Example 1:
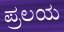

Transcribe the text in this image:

ಪ್ರಲಯ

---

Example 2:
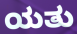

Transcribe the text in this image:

ಯತು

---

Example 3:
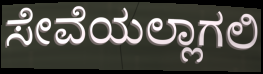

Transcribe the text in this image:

ಸೇವೆಯಲ್ಲಾಗಲಿ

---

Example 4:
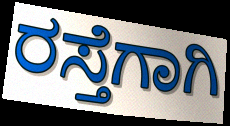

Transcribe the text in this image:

ರಸ್ತೆಗಾಗಿ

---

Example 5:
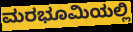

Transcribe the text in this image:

ಮರಭೂಮಿಯಲ್ಲಿ